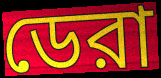
ডেরা